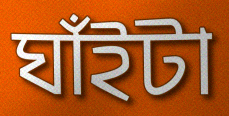
ঘাঁইটা